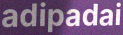
adipadai